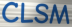
CLSM